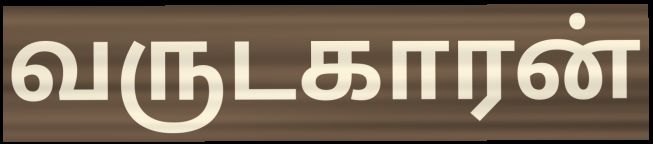
வருடகாரன்